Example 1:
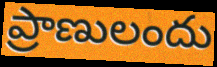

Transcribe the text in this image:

ప్రాణులందు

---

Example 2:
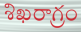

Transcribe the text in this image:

శిఖరాగ్రం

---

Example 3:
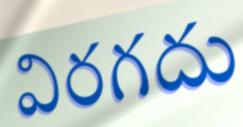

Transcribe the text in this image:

విరగదు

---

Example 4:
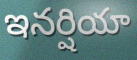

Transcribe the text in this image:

ఇనర్షియా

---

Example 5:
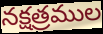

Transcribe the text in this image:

నక్షత్రముల